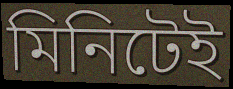
মিনিটেই